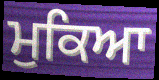
ਮੁਕਿਆ